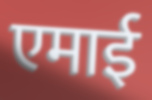
एमाई